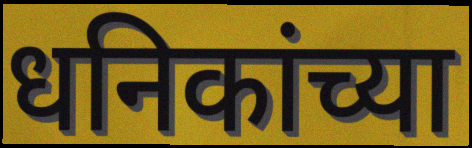
धनिकांच्या